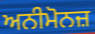
ਅਨੀਮੋਨਜ਼